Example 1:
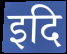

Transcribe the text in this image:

इदि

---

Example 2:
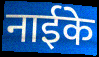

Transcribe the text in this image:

नाईके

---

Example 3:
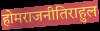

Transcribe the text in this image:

होमराजनीतिराहुल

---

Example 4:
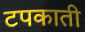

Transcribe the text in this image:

टपकाती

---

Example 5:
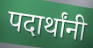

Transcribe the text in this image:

पदार्थांनी